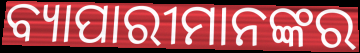
ବ୍ୟାପାରୀମାନଙ୍କର